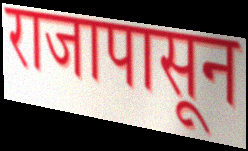
राजापासून